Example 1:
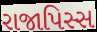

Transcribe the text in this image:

રાજાપિસ્સ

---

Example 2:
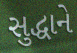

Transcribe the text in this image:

સુદ્ધાને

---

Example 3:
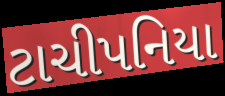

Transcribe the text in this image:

ટાચીપનિયા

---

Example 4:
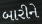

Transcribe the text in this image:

બારીને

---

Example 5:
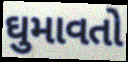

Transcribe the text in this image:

ઘુમાવતો